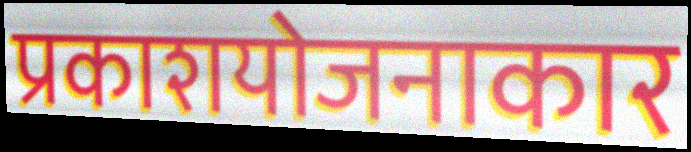
प्रकाशयोजनाकार